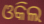
ଓକିଲ